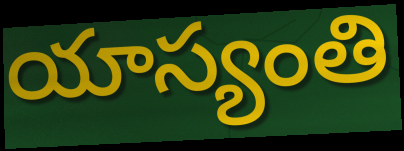
యాస్యంతి